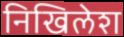
निखिलेश